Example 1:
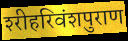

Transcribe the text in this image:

श्रीहरिवंशपुराण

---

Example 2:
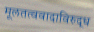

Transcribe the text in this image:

मूलतत्ववादाविरुद्ध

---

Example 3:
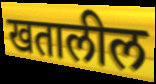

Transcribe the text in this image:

खतालील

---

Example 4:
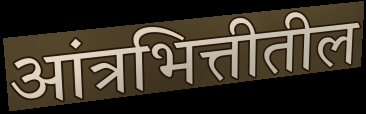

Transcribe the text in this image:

आंत्रभित्तीतील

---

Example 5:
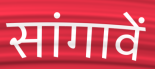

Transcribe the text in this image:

सांगावें